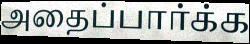
அதைப்பார்க்க